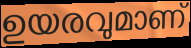
ഉയരവുമാണ്